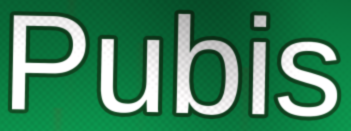
Pubis